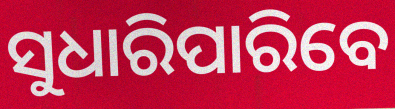
ସୁଧାରିପାରିବେ